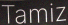
Tamiz